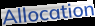
Allocation